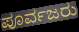
ಪೂರ್ವಜರು